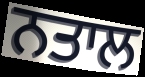
ਨਤਾਲ